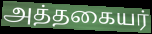
அத்தகையர்